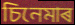
চিনেমাৰ